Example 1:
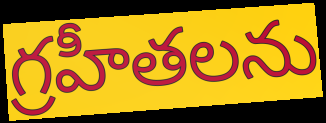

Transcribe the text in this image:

గ్రహీతలను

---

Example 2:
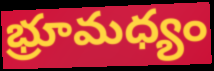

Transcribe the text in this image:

భ్రూమధ్యం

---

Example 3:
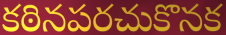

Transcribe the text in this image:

కఠినపరచుకొనక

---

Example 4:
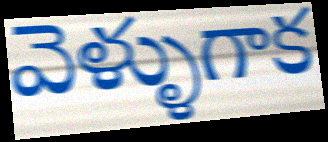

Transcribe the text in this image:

వెళ్ళుగాక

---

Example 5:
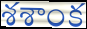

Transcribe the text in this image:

శశాంక